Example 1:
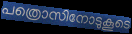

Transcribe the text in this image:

പത്രൊസിനോടുകൂടെ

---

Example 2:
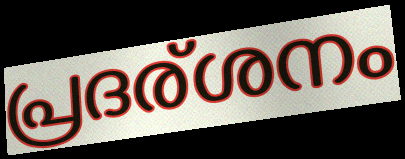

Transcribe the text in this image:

പ്രദര്ശനം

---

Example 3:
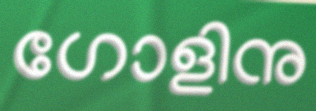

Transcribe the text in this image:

ഗോളിനു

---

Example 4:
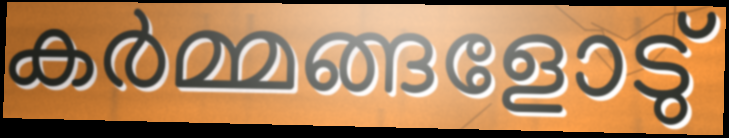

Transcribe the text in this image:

കർമ്മങ്ങളോടു്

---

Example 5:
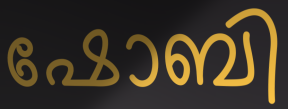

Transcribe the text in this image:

ഷോബി